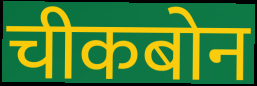
चीकबोन